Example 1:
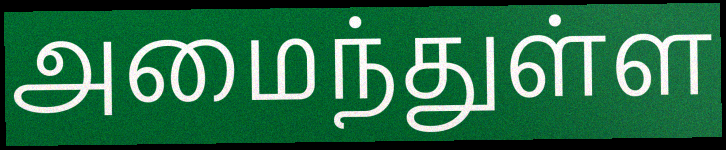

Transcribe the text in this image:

அமைந்துள்ள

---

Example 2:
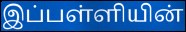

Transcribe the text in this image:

இப்பள்ளியின்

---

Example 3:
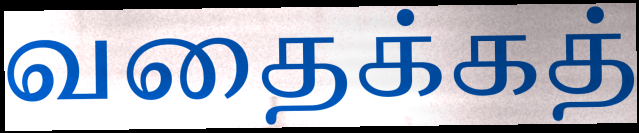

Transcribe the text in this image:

வதைக்கத்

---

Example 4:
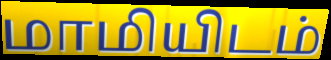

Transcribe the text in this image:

மாமியிடம்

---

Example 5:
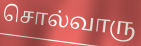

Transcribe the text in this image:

சொல்வாரு